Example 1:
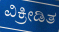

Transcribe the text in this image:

ವಿಕ್ರೀಡಿತ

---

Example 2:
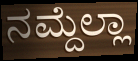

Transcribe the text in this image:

ನಮ್ದೆಲ್ಲಾ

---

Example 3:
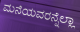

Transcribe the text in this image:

ಮನೆಯವರನ್ನೆಲ್ಲಾ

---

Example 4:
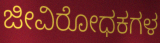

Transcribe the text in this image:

ಜೀವಿರೋಧಕಗಳ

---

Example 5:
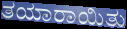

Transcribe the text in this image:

ತಯಾರಾಯಿತು